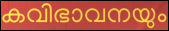
കവിഭാവനയും